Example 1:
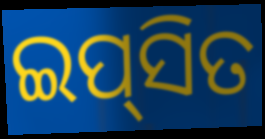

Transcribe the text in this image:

ଇପ୍‍ସିତ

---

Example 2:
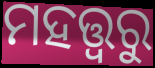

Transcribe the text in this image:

ମହତ୍ତ୍ୱରୁ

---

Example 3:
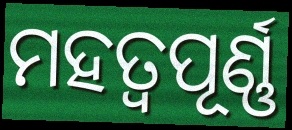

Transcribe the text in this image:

ମହତ୍ଵପୂର୍ଣ୍ଣ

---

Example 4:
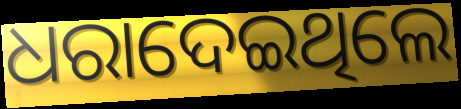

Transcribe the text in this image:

ଧରାଦେଇଥିଲେ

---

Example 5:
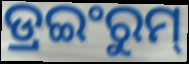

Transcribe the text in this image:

ଡ୍ରଇଂରୁମ୍